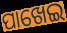
ପାଖେଇ